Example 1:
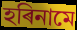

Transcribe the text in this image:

হৰিনামে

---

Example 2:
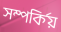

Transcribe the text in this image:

সম্পৰ্কিয়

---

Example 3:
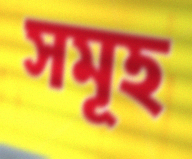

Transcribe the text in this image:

সমূহ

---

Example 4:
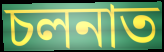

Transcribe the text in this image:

চলনাত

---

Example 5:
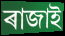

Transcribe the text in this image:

ৰাজাই